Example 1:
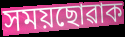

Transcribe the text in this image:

সময়ছোৱাক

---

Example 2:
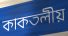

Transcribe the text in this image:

কাকতলীয়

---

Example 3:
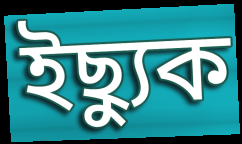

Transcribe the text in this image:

ইছ্যুক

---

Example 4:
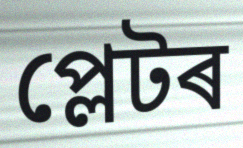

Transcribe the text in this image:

প্লেটৰ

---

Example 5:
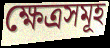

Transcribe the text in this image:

ক্ষেত্ৰসমূহ